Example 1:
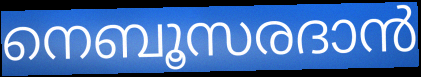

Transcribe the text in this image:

നെബൂസരദാൻ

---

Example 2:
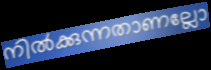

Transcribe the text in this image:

നിൽക്കുന്നതാണല്ലോ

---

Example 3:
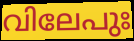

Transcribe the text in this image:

വിലേപുഃ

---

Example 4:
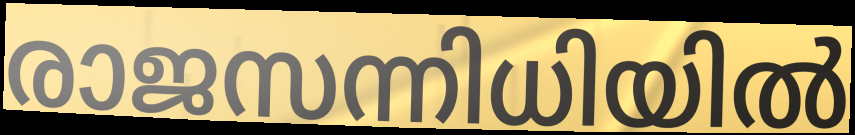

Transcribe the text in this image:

രാജസന്നിധിയിൽ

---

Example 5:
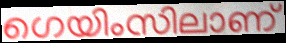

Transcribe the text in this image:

ഗെയിംസിലാണ്